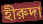
হীরুদা